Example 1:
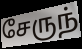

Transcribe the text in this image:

சேருந்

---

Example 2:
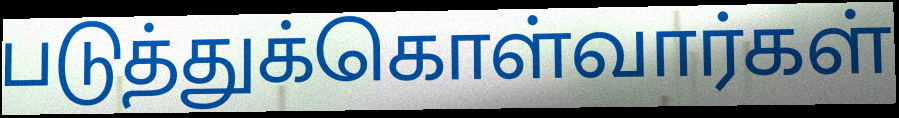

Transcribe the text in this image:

படுத்துக்கொள்வார்கள்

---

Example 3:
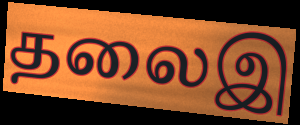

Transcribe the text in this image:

தலைஇ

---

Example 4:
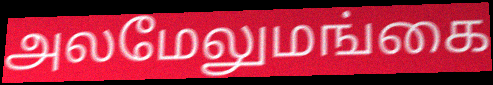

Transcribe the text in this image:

அலமேலுமங்கை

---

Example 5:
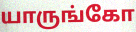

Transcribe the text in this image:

யாருங்கோ